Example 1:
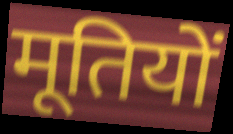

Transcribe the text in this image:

मूतियों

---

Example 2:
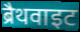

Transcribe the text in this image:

ब्रैथवाइट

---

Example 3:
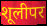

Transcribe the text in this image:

शूलीपर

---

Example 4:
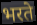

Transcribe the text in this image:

भरते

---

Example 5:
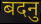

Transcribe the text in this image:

बदनु